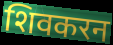
शिवकरन